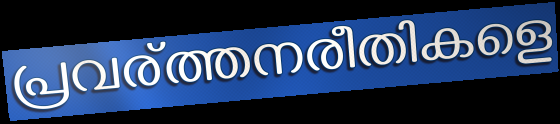
പ്രവര്ത്തനരീതികളെ